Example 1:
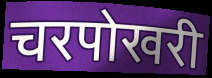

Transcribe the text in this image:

चरपोखरी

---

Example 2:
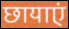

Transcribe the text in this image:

छायाएं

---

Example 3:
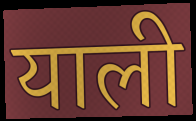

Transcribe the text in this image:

याली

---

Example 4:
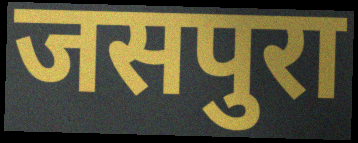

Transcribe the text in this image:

जसपुरा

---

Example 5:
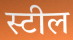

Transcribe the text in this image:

स्‍टील